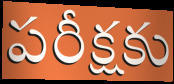
పరీక్షకు